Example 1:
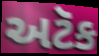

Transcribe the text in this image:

અટૅક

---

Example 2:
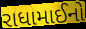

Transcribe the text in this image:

રાધામાઈનો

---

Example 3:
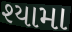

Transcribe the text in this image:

શ્યામા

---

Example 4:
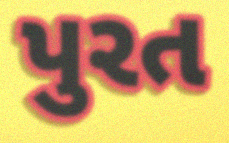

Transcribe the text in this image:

પુરત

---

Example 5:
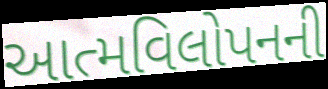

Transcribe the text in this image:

આત્મવિલોપનની